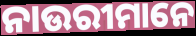
ନାଉରୀମାନେ